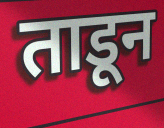
ताडून